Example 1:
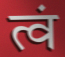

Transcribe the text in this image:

त्वं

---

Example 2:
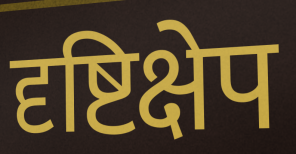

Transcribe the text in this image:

दृष्टिक्षेप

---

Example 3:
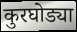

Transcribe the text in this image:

कुरघोड्या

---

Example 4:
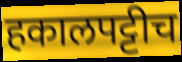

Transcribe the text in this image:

हकालपट्टीच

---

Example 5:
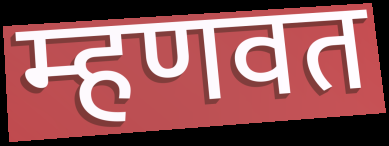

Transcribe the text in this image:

म्हणवत